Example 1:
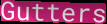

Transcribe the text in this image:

Gutters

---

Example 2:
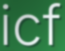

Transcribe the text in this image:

icf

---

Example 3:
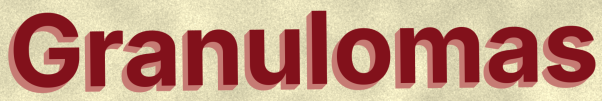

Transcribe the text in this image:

Granulomas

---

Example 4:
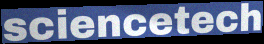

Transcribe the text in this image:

sciencetech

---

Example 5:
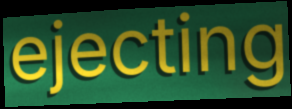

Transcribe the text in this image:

ejecting